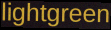
lightgreen